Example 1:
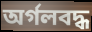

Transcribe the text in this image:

অর্গলবদ্ধ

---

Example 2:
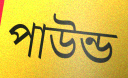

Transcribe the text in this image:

পাউন্ড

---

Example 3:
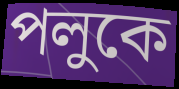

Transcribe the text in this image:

পলুকে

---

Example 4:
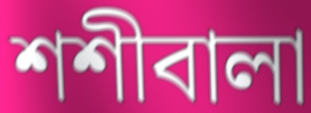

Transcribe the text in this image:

শশীবালা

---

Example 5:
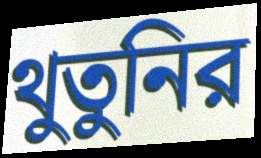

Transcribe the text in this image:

থুতুনির